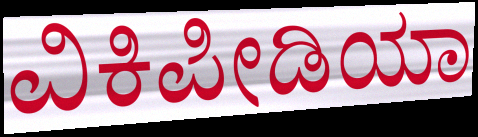
ವಿಕಿಪೀಡಿಯಾ